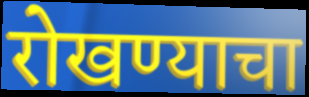
रोखण्याचा